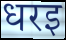
धरइ